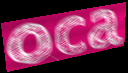
oca